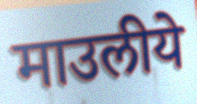
माउलीये